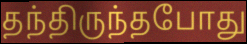
தந்திருந்தபோது